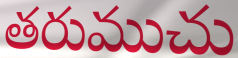
తరుముచు